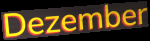
Dezember